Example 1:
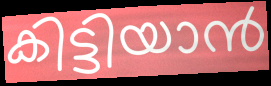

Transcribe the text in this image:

കിട്ടിയാൻ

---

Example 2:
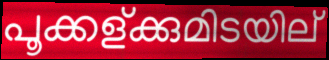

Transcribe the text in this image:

പൂക്കള്ക്കുമിടയില്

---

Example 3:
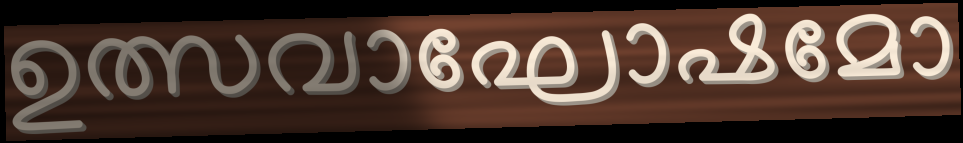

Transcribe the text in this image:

ഉത്സവാഘോഷമോ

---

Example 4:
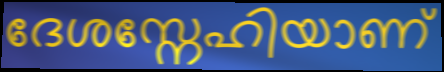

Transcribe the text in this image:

ദേശസ്നേഹിയാണ്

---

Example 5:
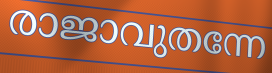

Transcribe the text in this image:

രാജാവുതന്നേ